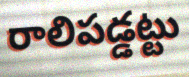
రాలిపడ్డట్టు